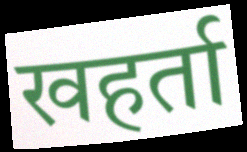
खहर्ता